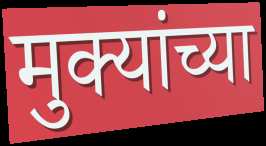
मुक्यांच्या